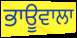
ਭਾਊਵਾਲਾ